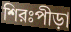
শিরঃপীড়া